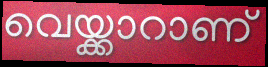
വെയ്ക്കാറാണ്